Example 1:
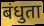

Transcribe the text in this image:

बंधुता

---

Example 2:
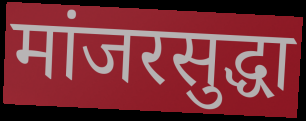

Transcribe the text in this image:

मांजरसुद्धा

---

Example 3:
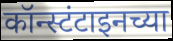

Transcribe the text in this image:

कॉन्स्टंटाइनच्या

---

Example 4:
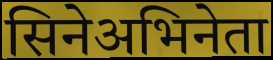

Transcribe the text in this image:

सिनेअभिनेता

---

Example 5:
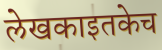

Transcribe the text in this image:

लेखकाइतकेच